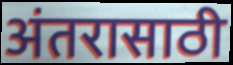
अंतरासाठी